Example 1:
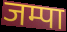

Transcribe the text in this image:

जम्पा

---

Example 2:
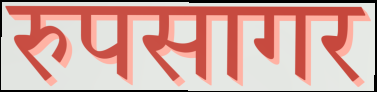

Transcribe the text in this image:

रुपसागर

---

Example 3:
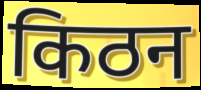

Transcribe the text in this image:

किठन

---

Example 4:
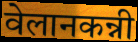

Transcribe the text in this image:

वेलानकन्नी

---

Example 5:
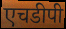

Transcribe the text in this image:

एचडीपी